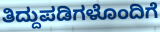
ತಿದ್ದುಪಡಿಗಳೊಂದಿಗೆ